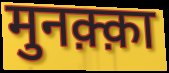
मुनक़्क़ा